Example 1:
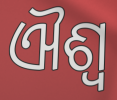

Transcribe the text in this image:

ଐଶ୍ୱ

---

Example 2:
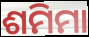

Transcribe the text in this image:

ଶମିମା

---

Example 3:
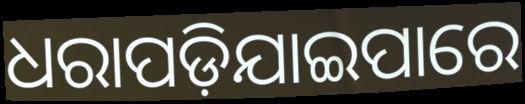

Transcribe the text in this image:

ଧରାପଡ଼ିଯାଇପାରେ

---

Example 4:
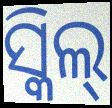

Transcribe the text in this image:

ସ୍କିଲ୍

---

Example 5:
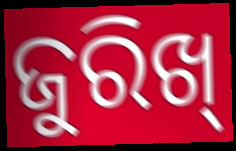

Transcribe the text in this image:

ଜୁରିଖ୍